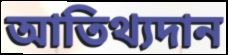
আতিথ্যদান